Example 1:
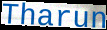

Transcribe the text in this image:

Tharun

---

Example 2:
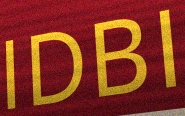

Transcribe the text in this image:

IDBI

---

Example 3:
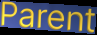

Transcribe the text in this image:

Parent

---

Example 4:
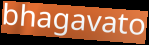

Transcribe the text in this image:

bhagavato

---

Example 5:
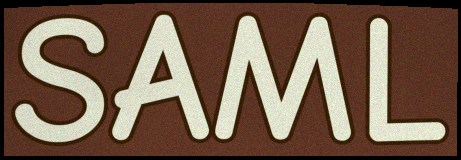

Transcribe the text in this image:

SAML